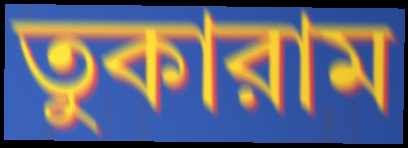
তুকারাম